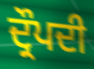
ਦ੍ਰੌਪਦੀ